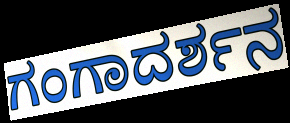
ಗಂಗಾದರ್ಶನ